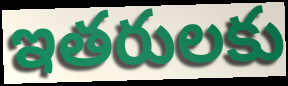
ఇతరులకు